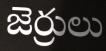
జెర్రులు